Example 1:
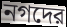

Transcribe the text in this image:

নগদের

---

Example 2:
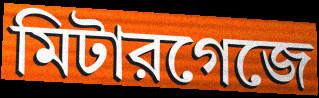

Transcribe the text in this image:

মিটারগেজে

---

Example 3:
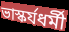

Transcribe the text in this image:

ভাস্কর্যধর্মী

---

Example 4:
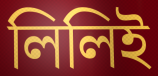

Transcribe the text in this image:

লিলিই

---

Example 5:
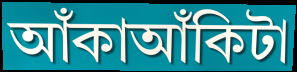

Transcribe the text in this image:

আঁকাআঁকিটা